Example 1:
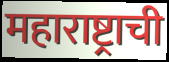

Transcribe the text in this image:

महाराष्ट्राची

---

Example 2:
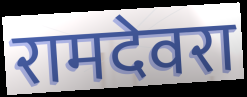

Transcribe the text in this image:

रामदेवरा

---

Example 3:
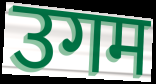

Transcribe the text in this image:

उगम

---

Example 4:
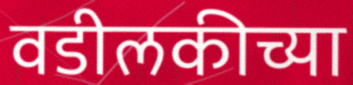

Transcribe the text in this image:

वडीलकीच्या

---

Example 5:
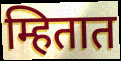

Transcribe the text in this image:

म्हितात